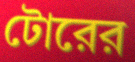
টোরের